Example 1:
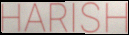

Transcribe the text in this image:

HARISH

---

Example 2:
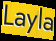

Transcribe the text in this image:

Layla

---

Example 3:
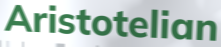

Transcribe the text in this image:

Aristotelian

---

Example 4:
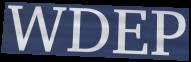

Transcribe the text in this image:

WDEP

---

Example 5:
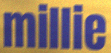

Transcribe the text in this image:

millie